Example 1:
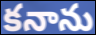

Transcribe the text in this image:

కనాను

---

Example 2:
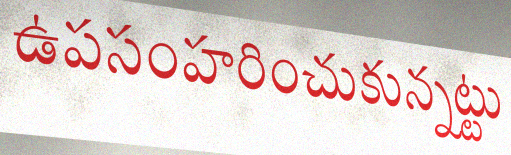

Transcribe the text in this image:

ఉపసంహరించుకున్నట్టు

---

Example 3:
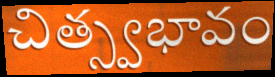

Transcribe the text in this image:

చిత్స్వభావం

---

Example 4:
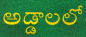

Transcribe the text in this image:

అడ్డాలలో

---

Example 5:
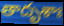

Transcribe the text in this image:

తాదృశాః